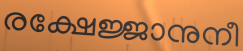
രക്ഷേജ്ജാനുനീ